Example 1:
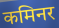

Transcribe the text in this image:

कमिनर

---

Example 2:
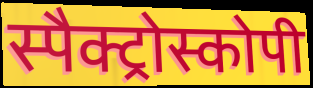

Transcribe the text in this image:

स्पैक्ट्रोस्कोपी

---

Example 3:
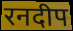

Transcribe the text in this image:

रनदीप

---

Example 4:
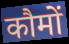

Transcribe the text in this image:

कौमों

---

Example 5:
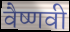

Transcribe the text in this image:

वैष्णवी